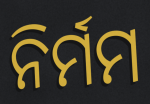
ନିର୍ମମ